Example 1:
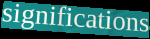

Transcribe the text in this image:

significations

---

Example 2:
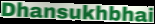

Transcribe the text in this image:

Dhansukhbhai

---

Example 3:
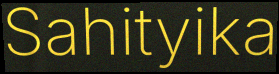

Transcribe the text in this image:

Sahityika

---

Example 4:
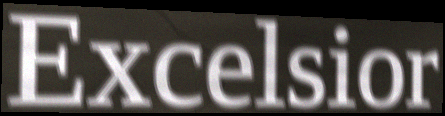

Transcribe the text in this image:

Excelsior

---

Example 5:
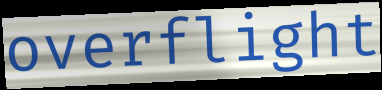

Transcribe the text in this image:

overflight